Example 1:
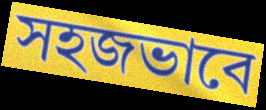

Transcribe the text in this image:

সহজভাবে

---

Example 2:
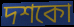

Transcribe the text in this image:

দশকো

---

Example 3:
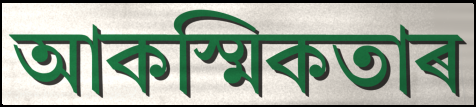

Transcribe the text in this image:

আকস্মিকতাৰ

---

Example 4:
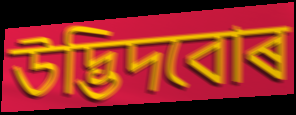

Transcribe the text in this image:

উদ্ভিদবোৰ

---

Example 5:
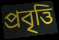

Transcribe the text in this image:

প্ৰবৃত্তি